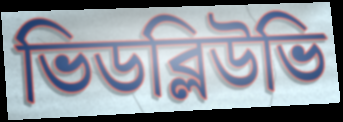
ভিডব্লিউভি